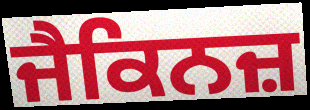
ਜੈਕਿਨਜ਼